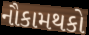
નૌકામથકો